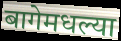
बागेमधल्या